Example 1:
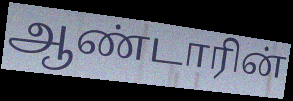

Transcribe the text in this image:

ஆண்டாரின்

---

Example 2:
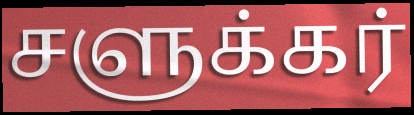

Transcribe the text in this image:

சளுக்கர்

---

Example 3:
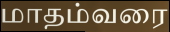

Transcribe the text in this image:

மாதம்வரை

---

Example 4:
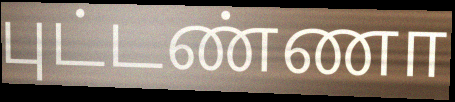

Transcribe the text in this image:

புட்டண்ணா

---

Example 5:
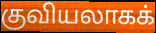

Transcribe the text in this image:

குவியலாகக்